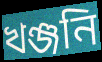
খঞ্জনি